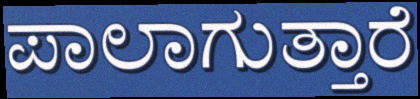
ಪಾಲಾಗುತ್ತಾರೆ